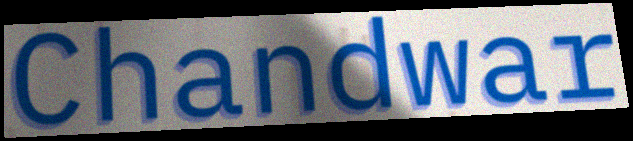
Chandwar